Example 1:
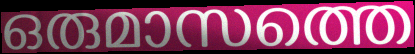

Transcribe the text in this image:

ഒരുമാസത്തെ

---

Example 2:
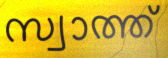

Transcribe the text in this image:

സ്വാത്ത്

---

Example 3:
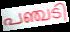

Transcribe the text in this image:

പഞ്ചടി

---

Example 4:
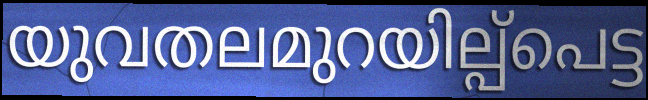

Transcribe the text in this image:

യുവതലമുറയില്പ്പെട്ട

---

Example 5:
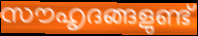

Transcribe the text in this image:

സൗഹൃദങ്ങളുണ്ട്